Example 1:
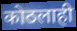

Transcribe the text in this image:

कोठलाही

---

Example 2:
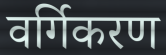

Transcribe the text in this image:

वर्गिकरण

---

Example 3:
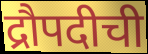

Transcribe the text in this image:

द्रौपदीची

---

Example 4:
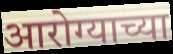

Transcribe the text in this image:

आरोग्याच्या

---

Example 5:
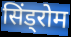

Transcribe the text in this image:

सिंड्रोम